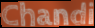
Chandi